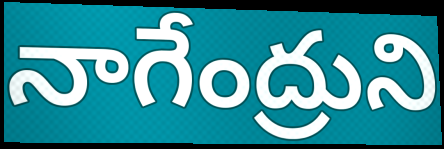
నాగేంద్రుని